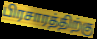
பிரசாரத்திற்கு